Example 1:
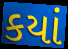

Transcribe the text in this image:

કયાં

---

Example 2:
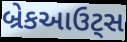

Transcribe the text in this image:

બ્રેકઆઉટ્સ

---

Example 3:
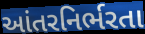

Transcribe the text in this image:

આંતરનિર્ભરતા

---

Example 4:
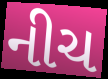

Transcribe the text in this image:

નીચ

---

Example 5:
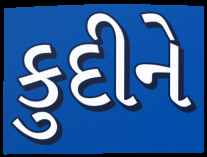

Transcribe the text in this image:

કુદીને